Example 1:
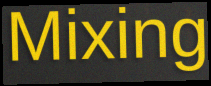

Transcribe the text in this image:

Mixing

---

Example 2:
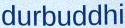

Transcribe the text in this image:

durbuddhi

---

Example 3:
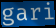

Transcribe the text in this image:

gari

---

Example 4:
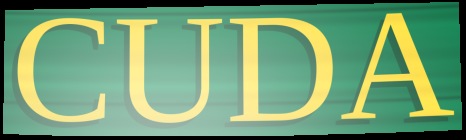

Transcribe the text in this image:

CUDA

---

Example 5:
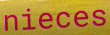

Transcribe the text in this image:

nieces